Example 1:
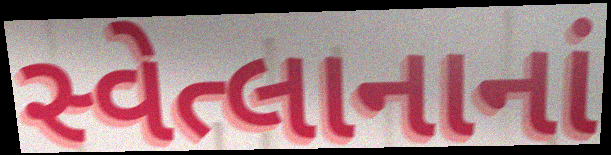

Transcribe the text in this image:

સ્વેત્લાનાનાં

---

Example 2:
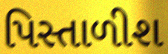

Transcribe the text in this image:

પિસ્તાળીશ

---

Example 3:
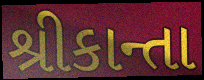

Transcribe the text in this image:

શ્રીકાન્તા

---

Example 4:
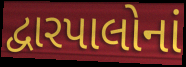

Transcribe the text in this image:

દ્વારપાલોનાં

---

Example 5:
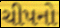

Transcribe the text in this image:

ચીપનો